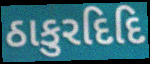
ઠાકુરદિદિ